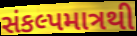
સંકલ્પમાત્રથી